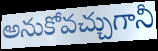
అనుకోవచ్చుగానీ